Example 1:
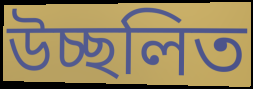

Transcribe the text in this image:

উচ্ছলিত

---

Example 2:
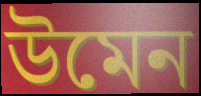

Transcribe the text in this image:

উমেন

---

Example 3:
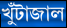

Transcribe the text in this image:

খুঁটাজাল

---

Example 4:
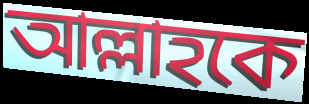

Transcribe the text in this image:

আল্লাহকে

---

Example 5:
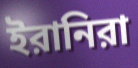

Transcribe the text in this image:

ইরানিরা